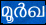
മൂർഖ